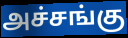
அச்சங்கு